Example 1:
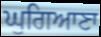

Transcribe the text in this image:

ਘੁਗਿਆਣਾ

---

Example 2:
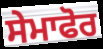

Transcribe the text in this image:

ਸੇਮਾਫੋਰ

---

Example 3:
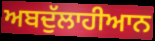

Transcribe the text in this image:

ਅਬਦੁੱਲਾਹੀਆਨ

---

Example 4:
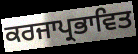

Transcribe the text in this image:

ਕਰਜਾਪ੍ਰਭਾਵਿਤ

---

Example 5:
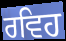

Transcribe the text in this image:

ਰਵਿਹ